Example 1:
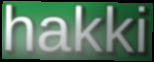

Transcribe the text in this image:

hakki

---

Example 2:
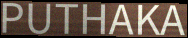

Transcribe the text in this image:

PUTHAKA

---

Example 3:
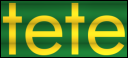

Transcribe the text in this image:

tete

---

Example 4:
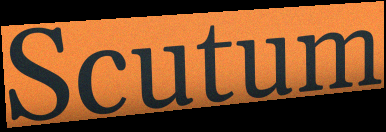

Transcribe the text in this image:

Scutum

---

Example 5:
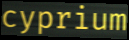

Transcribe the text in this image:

cyprium